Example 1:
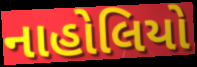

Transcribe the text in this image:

નાહોલિયો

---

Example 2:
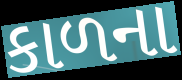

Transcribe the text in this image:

કાળના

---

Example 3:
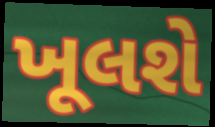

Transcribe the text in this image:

ખૂલશે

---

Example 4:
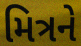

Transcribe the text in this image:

મિત્રને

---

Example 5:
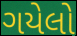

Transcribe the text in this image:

ગયેલો